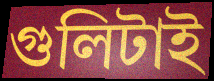
গুলিটাই